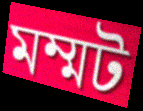
মম্মট